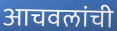
आचवलांची